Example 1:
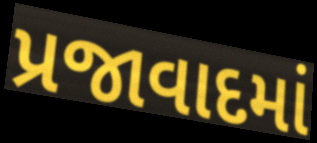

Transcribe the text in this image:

પ્રજાવાદમાં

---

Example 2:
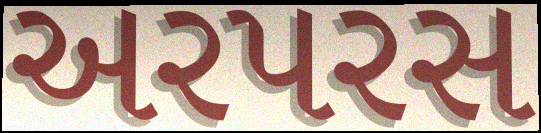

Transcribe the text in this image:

અરપરસ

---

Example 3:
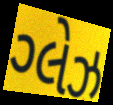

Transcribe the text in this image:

ગ્લેઝ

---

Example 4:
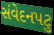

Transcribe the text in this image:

સંવેદનપટુ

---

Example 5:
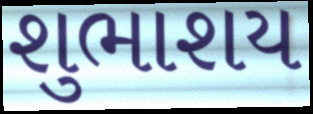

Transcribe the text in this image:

શુભાશય